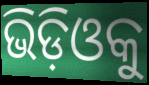
ଭିଡ଼ିଓକୁ